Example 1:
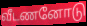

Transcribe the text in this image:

வீடணனோடு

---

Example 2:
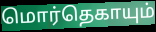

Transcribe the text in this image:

மொர்தெகாயும்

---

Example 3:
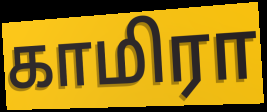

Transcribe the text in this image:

காமிரா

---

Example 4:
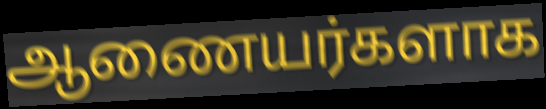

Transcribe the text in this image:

ஆணையர்களாக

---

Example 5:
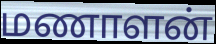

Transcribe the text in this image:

மணாளன்